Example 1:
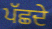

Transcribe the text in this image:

ਪੱਛਦੇ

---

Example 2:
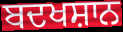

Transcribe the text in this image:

ਬਦਖਸ਼ਾਨ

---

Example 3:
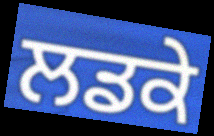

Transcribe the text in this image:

ਲਡਕੇ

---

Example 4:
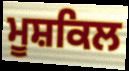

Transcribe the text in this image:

ਮੂਸ਼ਕਿਲ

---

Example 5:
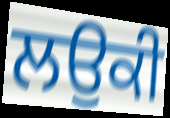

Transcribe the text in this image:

ਲਉਕੀ